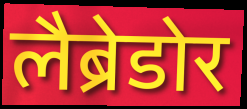
लैब्रेडोर